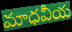
మాధవీయ